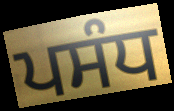
ਪਸੰਧ